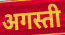
अगस्ती